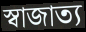
স্বাজাত্য